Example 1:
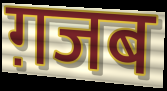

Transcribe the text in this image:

ग़जब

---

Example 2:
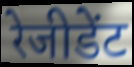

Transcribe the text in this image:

रेजीडेंट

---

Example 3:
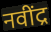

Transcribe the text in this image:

नवींद्र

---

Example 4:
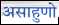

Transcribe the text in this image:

असाहुणो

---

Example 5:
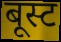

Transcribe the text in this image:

बूस्ट